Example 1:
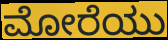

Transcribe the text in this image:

ಮೋರೆಯು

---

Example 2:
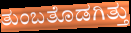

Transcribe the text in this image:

ತುಂಬತೊಡಗಿತ್ತು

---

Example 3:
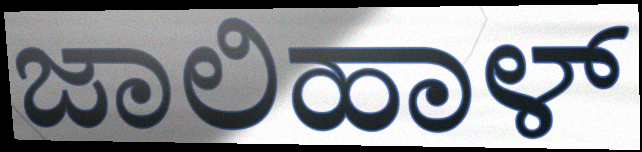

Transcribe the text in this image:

ಜಾಲಿಹಾಳ್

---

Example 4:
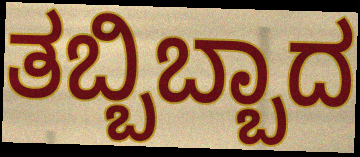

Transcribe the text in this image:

ತಬ್ಬಿಬ್ಬಾದ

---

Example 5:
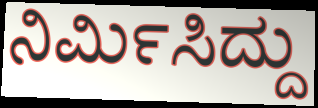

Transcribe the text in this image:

ನಿರ್ಮಿಸಿದ್ದು